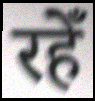
रहेँ